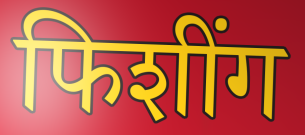
फिशींग